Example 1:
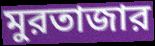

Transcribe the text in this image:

মুরতাজার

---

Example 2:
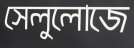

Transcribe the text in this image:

সেলুলোজে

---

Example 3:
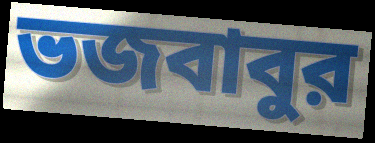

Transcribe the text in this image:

ভজবাবুর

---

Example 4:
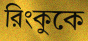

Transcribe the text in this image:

রিংকুকে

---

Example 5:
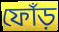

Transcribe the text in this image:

ফোঁড়